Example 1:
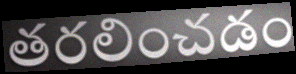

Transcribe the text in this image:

తరలించడం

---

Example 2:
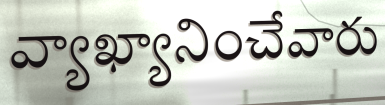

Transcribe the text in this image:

వ్యాఖ్యానించేవారు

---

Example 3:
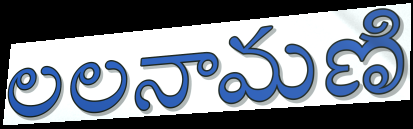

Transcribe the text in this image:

లలనామణి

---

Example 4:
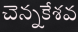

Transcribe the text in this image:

చెన్నకేశవ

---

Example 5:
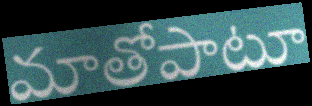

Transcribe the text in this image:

మాతోపాటూ